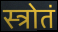
स्त्रोतं